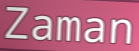
Zaman